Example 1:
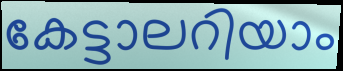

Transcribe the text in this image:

കേട്ടാലറിയാം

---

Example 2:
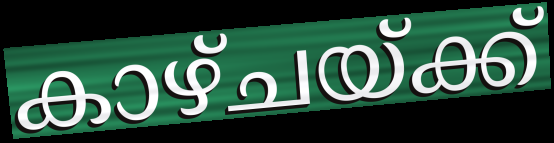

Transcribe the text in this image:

കാഴ്ചയ്ക്ക്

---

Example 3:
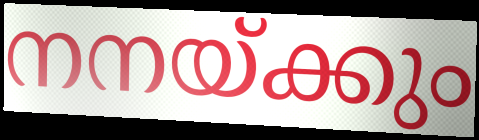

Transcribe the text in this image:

നനയ്ക്കും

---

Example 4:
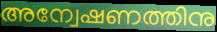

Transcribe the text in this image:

അന്വേഷണത്തിനു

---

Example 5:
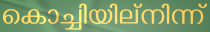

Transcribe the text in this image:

കൊച്ചിയില്നിന്ന്